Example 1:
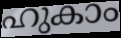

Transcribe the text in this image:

ഹുകാം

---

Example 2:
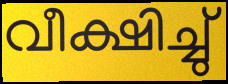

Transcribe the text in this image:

വീക്ഷിച്ചു്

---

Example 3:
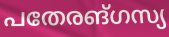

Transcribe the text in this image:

പതേരങ്ഗസ്യ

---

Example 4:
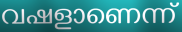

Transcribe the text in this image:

വഷളാണെന്ന്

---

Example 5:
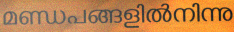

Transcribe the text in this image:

മണ്ഡപങ്ങളിൽനിന്നു